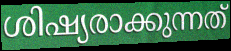
ശിഷ്യരാക്കുന്നത്